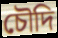
চৌদি